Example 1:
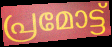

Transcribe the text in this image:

പ്രമോട്ട്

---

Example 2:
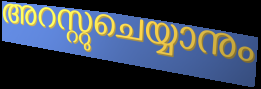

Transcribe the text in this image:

അറസ്റ്റുചെയ്യാനും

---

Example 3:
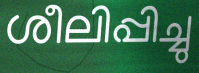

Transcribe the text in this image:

ശീലിപ്പിച്ചു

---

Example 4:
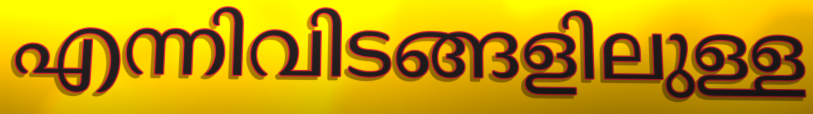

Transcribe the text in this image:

എന്നിവിടങ്ങളിലുള്ള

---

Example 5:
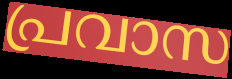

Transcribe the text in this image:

പ്രവാസ